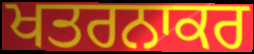
ਖਤਰਨਾਕਰ